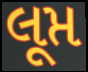
લૂપ્ત